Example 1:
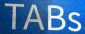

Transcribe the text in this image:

TABs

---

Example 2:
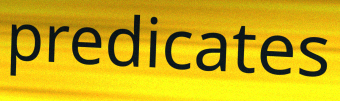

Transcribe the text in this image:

predicates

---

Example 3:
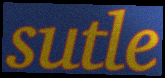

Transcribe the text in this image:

sutle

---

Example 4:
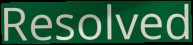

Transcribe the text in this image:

Resolved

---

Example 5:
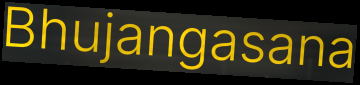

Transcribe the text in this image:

Bhujangasana